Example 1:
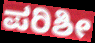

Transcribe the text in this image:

ಪರಿಶೀ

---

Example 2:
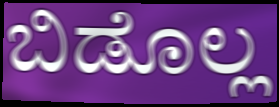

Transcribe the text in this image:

ಬಿಡೊಲ್ಲ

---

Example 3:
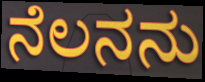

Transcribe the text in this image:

ನೆಲನನು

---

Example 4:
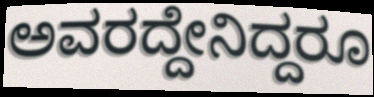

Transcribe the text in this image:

ಅವರದ್ದೇನಿದ್ದರೂ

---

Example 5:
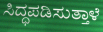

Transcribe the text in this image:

ಸಿದ್ಧಪಡಿಸುತ್ತಾಳೆ